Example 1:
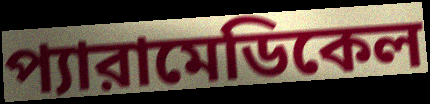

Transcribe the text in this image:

প্যারামেডিকেল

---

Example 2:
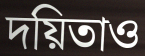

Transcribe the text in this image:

দয়িতাও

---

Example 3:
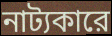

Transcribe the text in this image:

নাট্যকারে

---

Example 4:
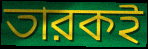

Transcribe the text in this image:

তারকই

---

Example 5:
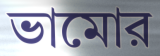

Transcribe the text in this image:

ভামোর